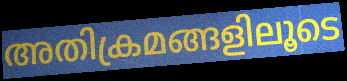
അതിക്രമങ്ങളിലൂടെ